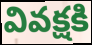
వివక్షకి